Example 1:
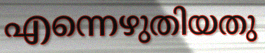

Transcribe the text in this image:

എന്നെഴുതിയതു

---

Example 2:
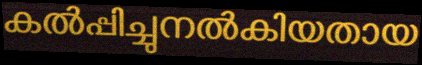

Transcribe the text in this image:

കൽപ്പിച്ചുനൽകിയതായ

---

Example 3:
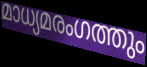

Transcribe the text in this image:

മാധ്യമരംഗത്തും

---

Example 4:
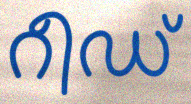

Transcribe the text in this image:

റീഡ്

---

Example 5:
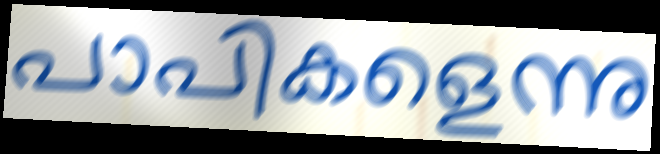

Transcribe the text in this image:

പാപികളെന്നു